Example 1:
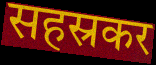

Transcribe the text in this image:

सहस्रकर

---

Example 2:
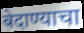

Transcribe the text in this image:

बेदाण्याचा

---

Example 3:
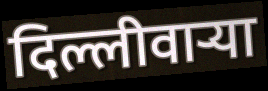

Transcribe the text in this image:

दिल्लीवाऱ्या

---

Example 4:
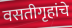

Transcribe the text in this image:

वसतीगृहांचे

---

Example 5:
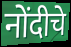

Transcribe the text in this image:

नोंदीचे